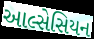
આલ્સેસિયન